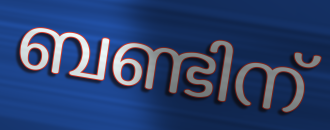
ബണ്ടിന്